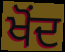
ਖੋਂਦ